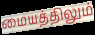
மையத்திலும்